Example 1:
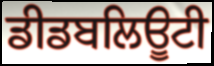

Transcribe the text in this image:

ਡੀਡਬਲਿਊਟੀ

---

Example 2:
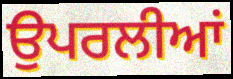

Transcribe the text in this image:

ਉਪਰਲੀਆਂ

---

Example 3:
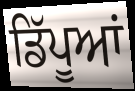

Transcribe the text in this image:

ਡਿੱਪੂਆਂ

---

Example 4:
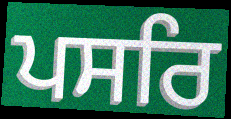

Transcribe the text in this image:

ਪਸਰਿ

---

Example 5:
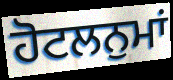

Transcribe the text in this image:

ਹੋਟਲਨੁਮਾਂ